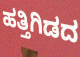
ಹತ್ತಿಗಿಡದ